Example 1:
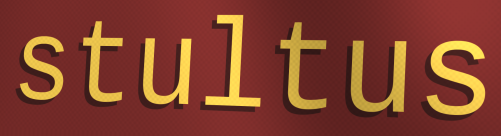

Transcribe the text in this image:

stultus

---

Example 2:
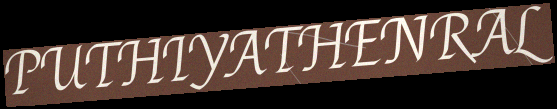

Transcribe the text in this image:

PUTHIYATHENRAL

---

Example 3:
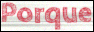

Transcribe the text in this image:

Porque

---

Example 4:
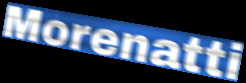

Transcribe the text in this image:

Morenatti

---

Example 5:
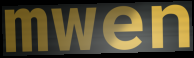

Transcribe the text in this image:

mwen